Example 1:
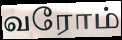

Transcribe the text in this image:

வரோம்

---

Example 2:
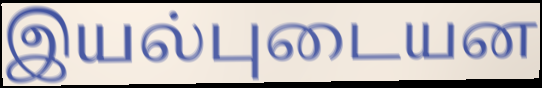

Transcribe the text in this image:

இயல்புடையன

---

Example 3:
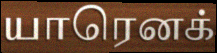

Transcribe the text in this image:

யாரெனக்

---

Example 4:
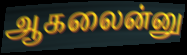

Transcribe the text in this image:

ஆகலைன்னு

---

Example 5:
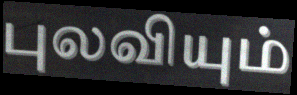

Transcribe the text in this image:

புலவியும்